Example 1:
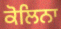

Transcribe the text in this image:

ਕੋਲਿਨਾ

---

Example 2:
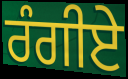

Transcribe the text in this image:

ਰੰਗੀਏ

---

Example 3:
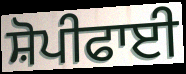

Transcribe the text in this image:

ਸ਼ੋਪੀਫਾਈ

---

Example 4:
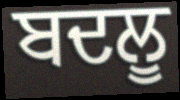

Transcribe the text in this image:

ਬਦਲੂ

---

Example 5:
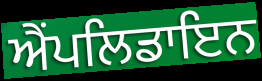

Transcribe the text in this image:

ਐੰਪਲਿਡਾਇਨ